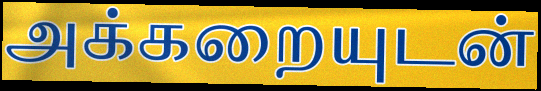
அக்கறையுடன்